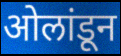
ओलांडून